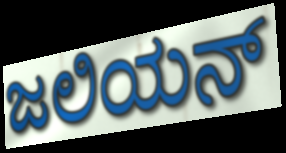
ಜಲಿಯನ್